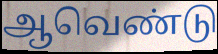
ஆவெண்டு